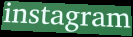
instagram